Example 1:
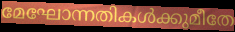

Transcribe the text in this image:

മേഘോന്നതികൾക്കുമീതേ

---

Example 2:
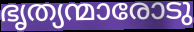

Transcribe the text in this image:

ഭൃത്യന്മാരോടു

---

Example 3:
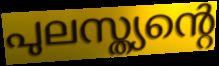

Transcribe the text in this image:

പുലസ്ത്യന്റെ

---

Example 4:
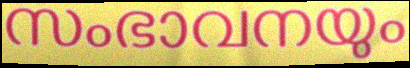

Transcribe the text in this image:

സംഭാവനയും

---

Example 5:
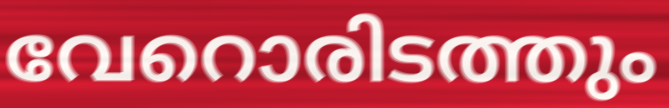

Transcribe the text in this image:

വേറൊരിടത്തും